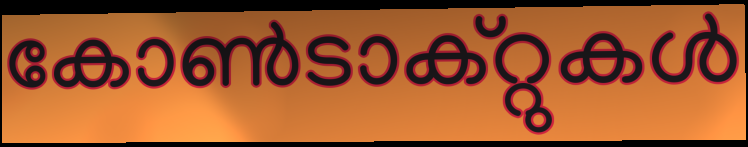
കോൺടാക്റ്റുകൾ